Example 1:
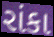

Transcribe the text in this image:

રાંકા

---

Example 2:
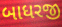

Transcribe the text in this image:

બાધરજી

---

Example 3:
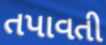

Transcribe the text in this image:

તપાવતી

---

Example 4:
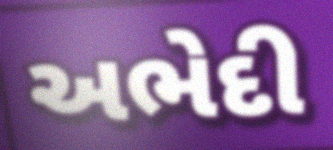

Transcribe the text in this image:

અભેદી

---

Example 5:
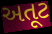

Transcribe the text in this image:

અતૂટ